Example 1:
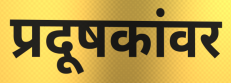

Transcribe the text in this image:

प्रदूषकांवर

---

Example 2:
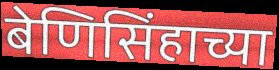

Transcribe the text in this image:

बेणिसिंहाच्या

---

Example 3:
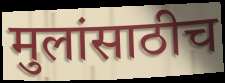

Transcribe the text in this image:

मुलांसाठीच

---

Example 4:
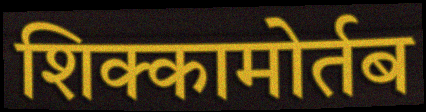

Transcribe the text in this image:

शिक्‍कामोर्तब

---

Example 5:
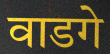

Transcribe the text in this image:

वाडगे